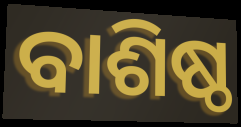
ବାଶିଷ୍ଠ